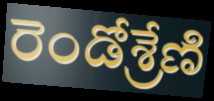
రెండోశ్రేణి